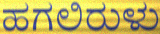
ಹಗಲಿರುಳು